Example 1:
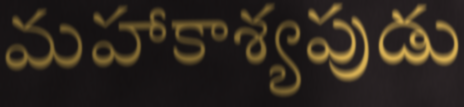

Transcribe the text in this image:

మహాకాశ్యపుడు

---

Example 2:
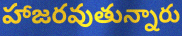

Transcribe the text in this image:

హాజరవుతున్నారు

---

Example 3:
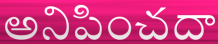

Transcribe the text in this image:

అనిపించదా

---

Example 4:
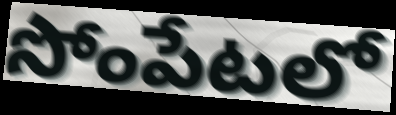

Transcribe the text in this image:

సోంపేటలో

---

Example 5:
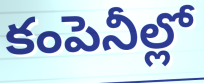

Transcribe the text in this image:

కంపెనీల్లో